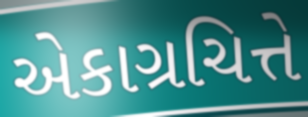
એકાગ્રચિત્તે